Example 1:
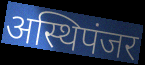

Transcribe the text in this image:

अस्थिपंजर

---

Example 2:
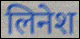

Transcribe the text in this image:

लिनेश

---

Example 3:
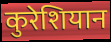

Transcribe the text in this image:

कुरेशियान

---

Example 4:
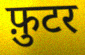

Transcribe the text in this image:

फ़ुटर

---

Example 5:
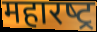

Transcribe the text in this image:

महारष्ट्र